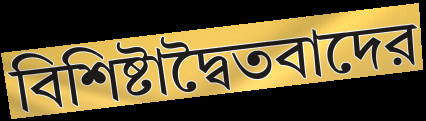
বিশিষ্টাদ্বৈতবাদের